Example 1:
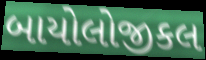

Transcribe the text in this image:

બાયોલોજીકલ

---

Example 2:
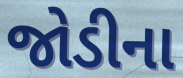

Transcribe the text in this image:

જોડીના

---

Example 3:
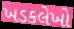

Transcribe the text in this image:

ખડકલેખો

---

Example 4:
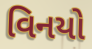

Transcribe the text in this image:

વિનયો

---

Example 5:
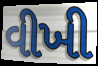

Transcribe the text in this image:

વીખી